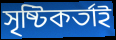
সৃষ্টিকৰ্তাই